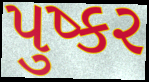
પુષ્કર